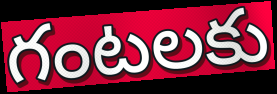
గంటలకు